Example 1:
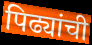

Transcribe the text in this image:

पिढ्यांची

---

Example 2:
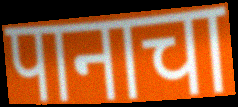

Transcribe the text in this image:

पानाचा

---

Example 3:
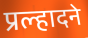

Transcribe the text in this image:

प्रल्हादने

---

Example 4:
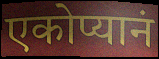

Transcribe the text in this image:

एकोप्यानं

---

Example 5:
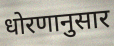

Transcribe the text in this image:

धोरणानुसार